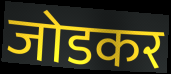
जोडकर